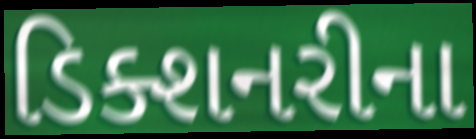
ડિક્શનરીના